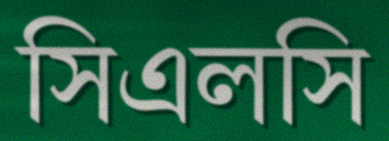
সিএলসি